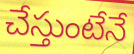
చేస్తుంటేనే